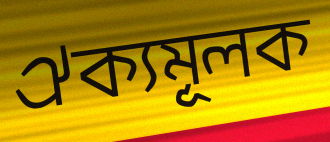
ঐক্যমূলক